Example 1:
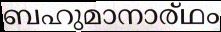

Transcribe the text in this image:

ബഹുമാനാര്ഥം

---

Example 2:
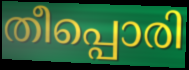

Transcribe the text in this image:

തീപ്പൊരി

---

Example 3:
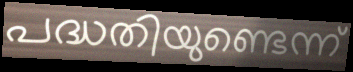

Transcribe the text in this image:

പദ്ധതിയുണ്ടെന്ന്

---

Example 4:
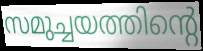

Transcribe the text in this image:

സമുച്ചയത്തിന്റെ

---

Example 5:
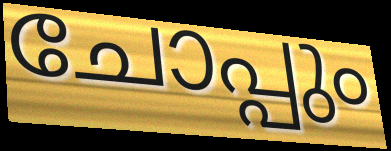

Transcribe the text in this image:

ചോപ്പും